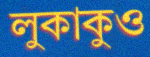
লুকাকুও